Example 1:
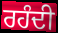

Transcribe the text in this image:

ਰਹੰਦੀ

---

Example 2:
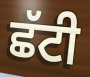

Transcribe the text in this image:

ਛੱਟੀ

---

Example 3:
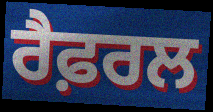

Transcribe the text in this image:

ਰੈਫ਼ਰਲ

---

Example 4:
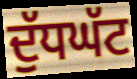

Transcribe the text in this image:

ਦੁੱਧਘੱਟ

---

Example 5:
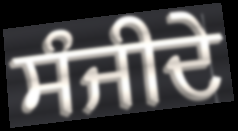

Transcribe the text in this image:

ਸੰਜੀਦੇ